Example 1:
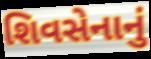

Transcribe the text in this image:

શિવસેનાનું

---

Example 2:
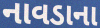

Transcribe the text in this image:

નાવડાના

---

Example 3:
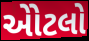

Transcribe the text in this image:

એોટલો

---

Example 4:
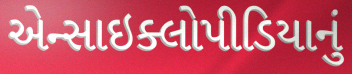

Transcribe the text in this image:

એન્સાઇક્લોપીડિયાનું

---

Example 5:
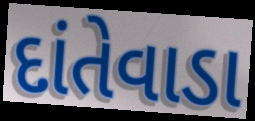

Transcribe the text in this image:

દાંતેવાડા